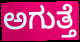
ಅಗುತ್ತೆ